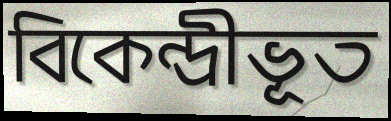
বিকেন্দ্রীভূত